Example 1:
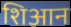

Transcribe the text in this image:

शिआन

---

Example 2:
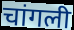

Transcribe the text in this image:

चांगली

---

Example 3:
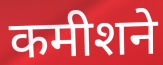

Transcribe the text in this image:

कमीशने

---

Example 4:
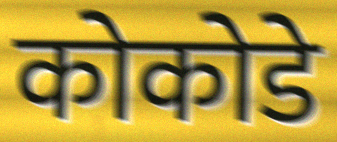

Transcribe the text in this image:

कोकोडे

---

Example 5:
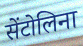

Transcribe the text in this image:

सेंटोलिना